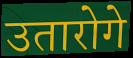
उतारोगे